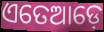
ଏତେଆଡ଼େ